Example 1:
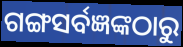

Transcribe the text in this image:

ଗଙ୍ଗସର୍ବଜ୍ଞଙ୍କଠାରୁ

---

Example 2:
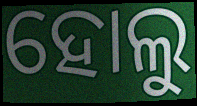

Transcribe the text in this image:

ହୋଲୁ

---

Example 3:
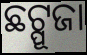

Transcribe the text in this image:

ଛଟ୍ପୂଜା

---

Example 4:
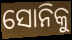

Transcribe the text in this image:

ସୋନିକୁ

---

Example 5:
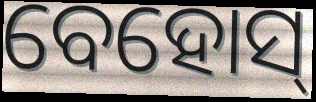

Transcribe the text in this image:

ବେହୋସ୍